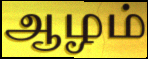
ஆழம்